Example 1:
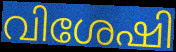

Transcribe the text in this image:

വിശേഷി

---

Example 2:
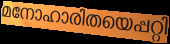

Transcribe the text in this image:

മനോഹാരിതയെപ്പറ്റി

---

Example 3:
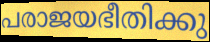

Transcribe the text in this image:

പരാജയഭീതിക്കു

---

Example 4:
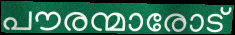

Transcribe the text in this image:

പൗരന്മാരോട്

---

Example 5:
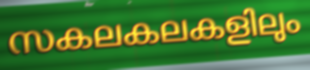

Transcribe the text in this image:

സകലകലകളിലും